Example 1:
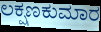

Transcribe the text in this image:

ಲಕ್ಷಣಕುಮಾರ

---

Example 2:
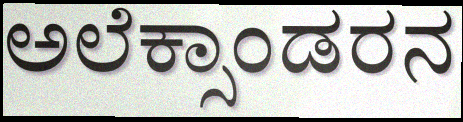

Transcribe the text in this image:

ಅಲೆಕ್ಸಾಂಡರನ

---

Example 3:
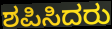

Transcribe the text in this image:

ಶಪಿಸಿದರು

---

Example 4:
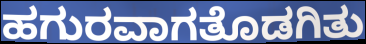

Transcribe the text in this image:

ಹಗುರವಾಗತೊಡಗಿತು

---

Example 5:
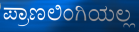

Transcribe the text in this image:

ಪ್ರಾಣಲಿಂಗಿಯಲ್ಲ